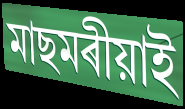
মাছমৰীয়াই